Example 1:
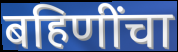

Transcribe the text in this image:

बहिणींचा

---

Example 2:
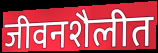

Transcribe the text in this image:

जीवनशैलीत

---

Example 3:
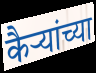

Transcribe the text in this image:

कैऱ्यांच्या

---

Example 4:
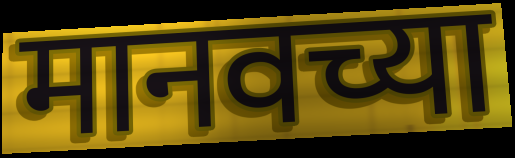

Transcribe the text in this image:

मानवच्या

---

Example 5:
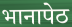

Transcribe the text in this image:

भानापेठ